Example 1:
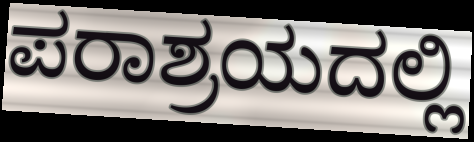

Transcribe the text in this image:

ಪರಾಶ್ರಯದಲ್ಲಿ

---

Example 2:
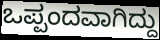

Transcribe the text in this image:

ಒಪ್ಪಂದವಾಗಿದ್ದು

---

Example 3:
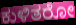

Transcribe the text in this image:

ಕುಳಿತರೋ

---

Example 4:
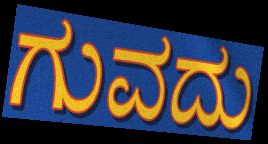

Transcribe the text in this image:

ಗುವದು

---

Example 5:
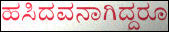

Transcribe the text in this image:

ಹಸಿದವನಾಗಿದ್ದರೂ